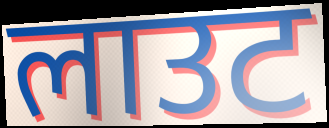
लाउट